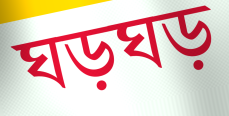
ঘড়ঘড়